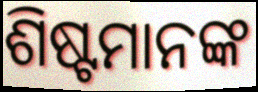
ଶିଷ୍ଟମାନଙ୍କ